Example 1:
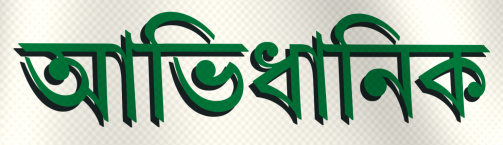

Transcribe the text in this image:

আভিধানিক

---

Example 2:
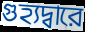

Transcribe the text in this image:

গুহ্যদ্বারে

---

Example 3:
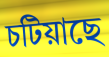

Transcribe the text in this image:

চটিয়াছে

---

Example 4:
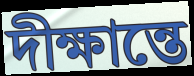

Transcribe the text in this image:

দীক্ষান্তে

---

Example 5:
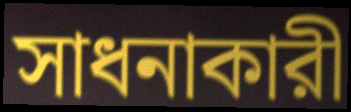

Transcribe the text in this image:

সাধনাকারী